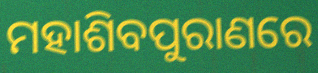
ମହାଶିବପୁରାଣରେ